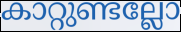
കാറ്റുണ്ടല്ലോ